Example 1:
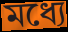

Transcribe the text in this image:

মধ্যে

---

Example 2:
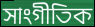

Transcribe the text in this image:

সাংগীতিক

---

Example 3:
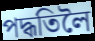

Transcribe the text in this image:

পদ্ধতিলৈ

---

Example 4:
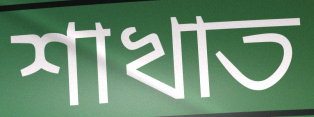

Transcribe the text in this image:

শাখাত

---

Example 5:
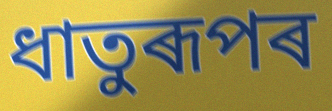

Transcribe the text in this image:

ধাতুৰূপৰ